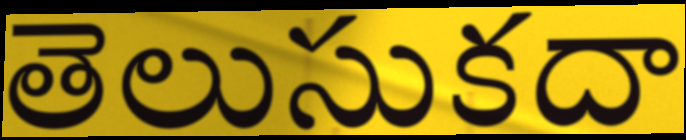
తెలుసుకదా